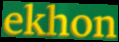
ekhon